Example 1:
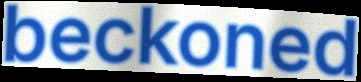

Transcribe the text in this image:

beckoned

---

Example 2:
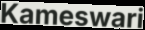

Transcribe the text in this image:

Kameswari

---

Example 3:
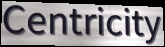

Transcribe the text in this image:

Centricity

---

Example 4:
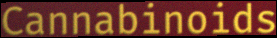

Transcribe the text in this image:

Cannabinoids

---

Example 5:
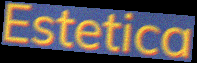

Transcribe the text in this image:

Estetica